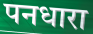
पनधारा